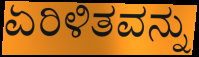
ಏರಿಳಿತವನ್ನು